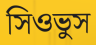
সিওভুস